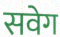
सवेग